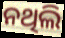
ନଥିଲି